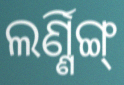
ଲର୍ଣ୍ଣିଙ୍ଗ୍